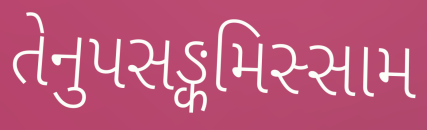
તેનુપસઙ્કમિસ્સામ